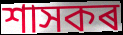
শাসকৰ